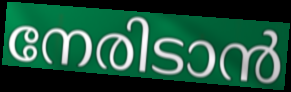
നേരിടാൻ